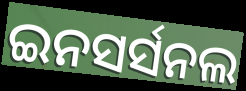
ଇନସର୍ସନଲ